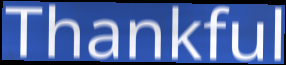
Thankful